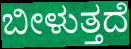
ಬೀಳುತ್ತದೆ